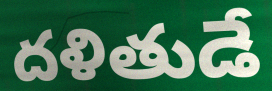
దళితుడే